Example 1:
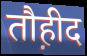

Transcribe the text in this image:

तौह़ीद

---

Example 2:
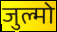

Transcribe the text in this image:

जुल्मो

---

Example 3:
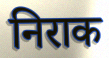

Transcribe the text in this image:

निराक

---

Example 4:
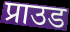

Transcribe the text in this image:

प्राउड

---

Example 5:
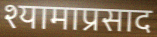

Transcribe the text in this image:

श्यामाप्रसाद